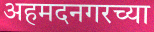
अहमदनगरच्या